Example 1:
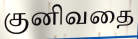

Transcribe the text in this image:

குனிவதை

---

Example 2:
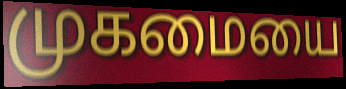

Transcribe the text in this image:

முகமையை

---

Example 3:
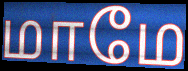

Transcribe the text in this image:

மாமே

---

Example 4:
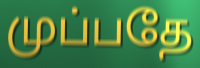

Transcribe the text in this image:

முப்பதே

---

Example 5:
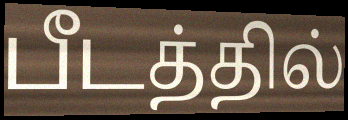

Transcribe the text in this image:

பீடத்தில்